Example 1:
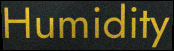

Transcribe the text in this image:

Humidity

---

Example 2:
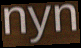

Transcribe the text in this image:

nyn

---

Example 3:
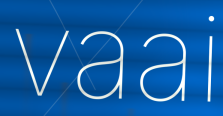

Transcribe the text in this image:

vaai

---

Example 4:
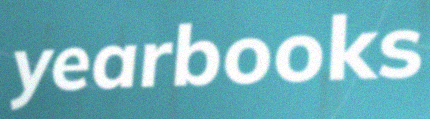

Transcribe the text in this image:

yearbooks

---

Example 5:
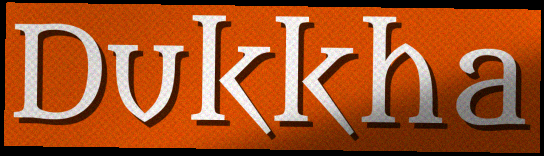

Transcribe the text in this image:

Dukkha